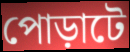
পোড়াটে